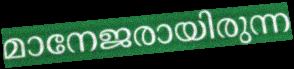
മാനേജരായിരുന്ന